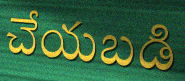
చేయబడి